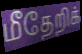
மீதேறிக்